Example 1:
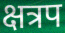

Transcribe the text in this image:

क्षत्रप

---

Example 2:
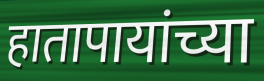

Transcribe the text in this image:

हातापायांच्या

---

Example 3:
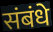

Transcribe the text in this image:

संबंधे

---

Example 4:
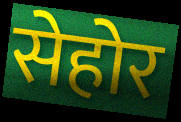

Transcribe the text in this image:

सेहोर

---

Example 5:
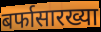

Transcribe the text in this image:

बर्फासारख्या